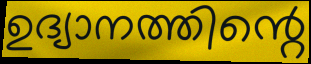
ഉദ്യാനത്തിന്റെ